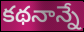
కథనాన్నే